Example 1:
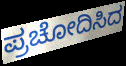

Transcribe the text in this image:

ಪ್ರಚೋದಿಸಿದ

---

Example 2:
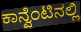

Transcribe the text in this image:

ಕಾನ್ವೆಂಟಿನಲ್ಲಿ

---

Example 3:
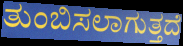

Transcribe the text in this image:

ತುಂಬಿಸಲಾಗುತ್ತದೆ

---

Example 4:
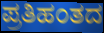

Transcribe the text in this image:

ಪ್ರತಿಹಂತದ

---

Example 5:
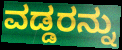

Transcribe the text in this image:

ವಡ್ಡರನ್ನು